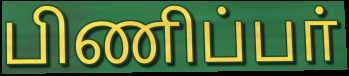
பிணிப்பர்